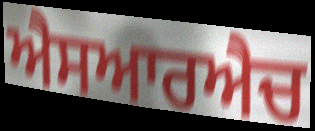
ਐਸਆਰਐਚ